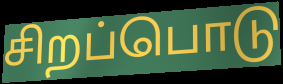
சிறப்பொடு